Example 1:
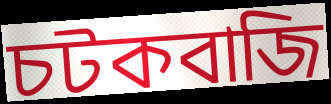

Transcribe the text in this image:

চটকবাজি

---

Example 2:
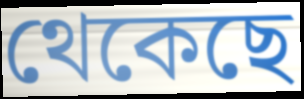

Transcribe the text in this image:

থেকেছে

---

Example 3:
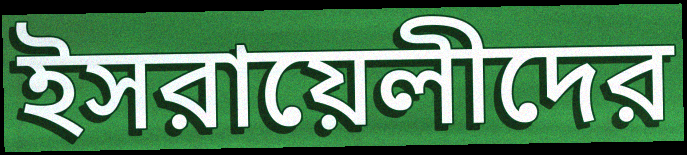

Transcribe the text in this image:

ইসরায়েলীদের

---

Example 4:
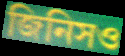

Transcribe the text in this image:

জিনিসও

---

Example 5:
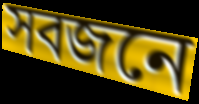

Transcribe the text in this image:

সবজনে